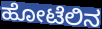
ಹೋಟೆಲಿನ